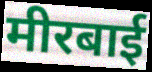
मीरबाई